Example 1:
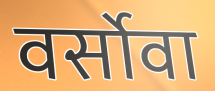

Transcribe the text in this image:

वर्सोवा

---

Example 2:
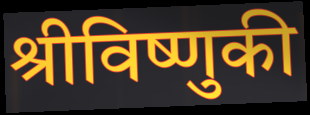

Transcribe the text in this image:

श्रीविष्णुकी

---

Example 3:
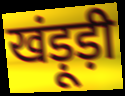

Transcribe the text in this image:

खंड़ूड़ी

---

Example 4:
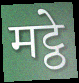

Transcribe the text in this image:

मट्ठे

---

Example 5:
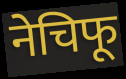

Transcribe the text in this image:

नेचिफू